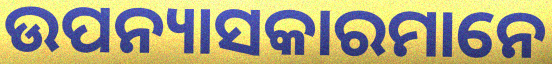
ଉପନ୍ୟାସକାରମାନେ